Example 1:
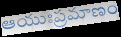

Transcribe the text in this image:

ఆయుఃప్రమాణం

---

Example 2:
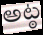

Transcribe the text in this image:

అట్ఠ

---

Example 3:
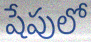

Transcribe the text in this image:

షేపులో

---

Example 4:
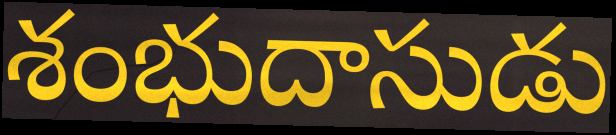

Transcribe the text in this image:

శంభుదాసుడు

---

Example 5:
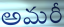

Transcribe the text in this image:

అమరీ